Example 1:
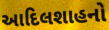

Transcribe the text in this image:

આદિલશાહનો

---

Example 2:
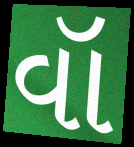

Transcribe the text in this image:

વૉ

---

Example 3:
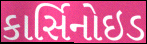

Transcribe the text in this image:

કાર્સિનોઇડ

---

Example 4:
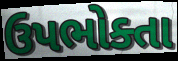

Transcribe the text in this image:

ઉપભોક્તા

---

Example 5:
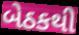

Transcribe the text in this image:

બેઠકથી